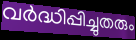
വർദ്ധിപ്പിച്ചുതരും